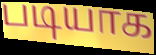
படியாக